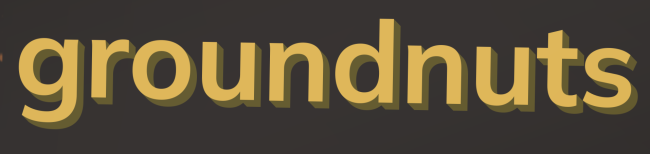
groundnuts